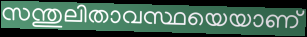
സന്തുലിതാവസ്ഥയെയാണ്